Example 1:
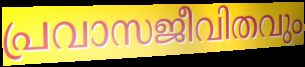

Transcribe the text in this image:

പ്രവാസജീവിതവും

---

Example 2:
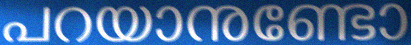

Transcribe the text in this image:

പറയാനുണ്ടോ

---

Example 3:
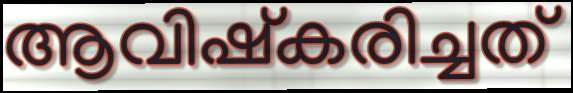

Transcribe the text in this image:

ആവിഷ്കരിച്ചത്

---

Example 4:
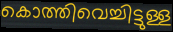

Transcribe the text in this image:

കൊത്തിവെച്ചിട്ടുള്ള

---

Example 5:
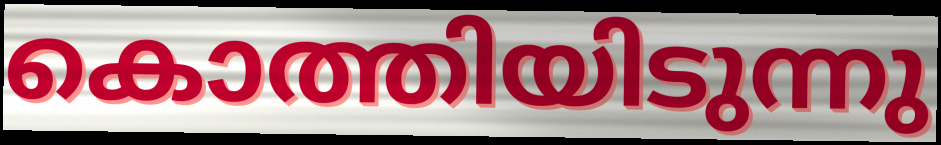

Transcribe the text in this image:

കൊത്തിയിടുന്നു